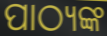
ପାଠ୍ୟଙ୍କ